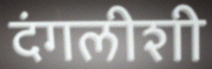
दंगलीशी